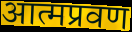
आत्मप्रवण